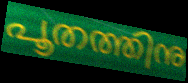
പൂതത്തിനു